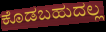
ಕೊಡಬಹುದಲ್ಲ